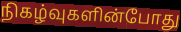
நிகழ்வுகளின்போது